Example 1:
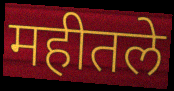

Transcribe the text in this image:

महीतले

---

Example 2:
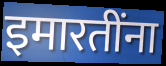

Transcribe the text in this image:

इमारतींना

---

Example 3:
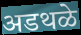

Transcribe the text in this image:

अडथळे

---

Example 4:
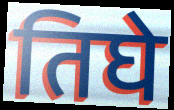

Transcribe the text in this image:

तिघे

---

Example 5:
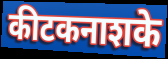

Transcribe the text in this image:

कीटकनाशके